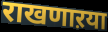
राखणाऱया